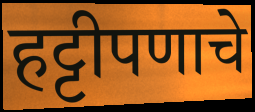
हट्टीपणाचे